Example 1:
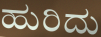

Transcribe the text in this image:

ಹುರಿದು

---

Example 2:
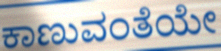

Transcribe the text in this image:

ಕಾಣುವಂತೆಯೇ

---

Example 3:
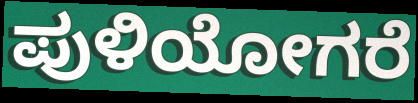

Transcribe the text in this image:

ಪುಳಿಯೋಗರೆ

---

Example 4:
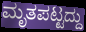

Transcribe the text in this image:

ಮೃತಪಟ್ಟದ್ದು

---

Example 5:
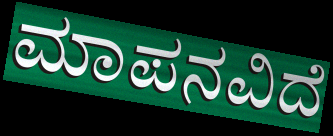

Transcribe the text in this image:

ಮಾಪನವಿದೆ